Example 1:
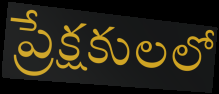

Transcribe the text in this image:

ప్రేక్షకులలో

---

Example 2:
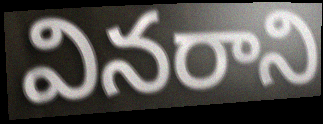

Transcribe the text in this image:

వినరాని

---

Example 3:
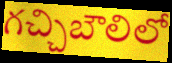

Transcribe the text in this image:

గచ్చిబౌలిలో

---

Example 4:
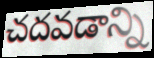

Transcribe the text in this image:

చదవడాన్ని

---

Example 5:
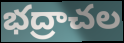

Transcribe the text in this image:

భద్రాచల